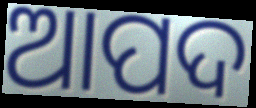
ଆପଦ